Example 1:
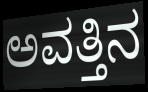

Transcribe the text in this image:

ಅವತ್ತಿನ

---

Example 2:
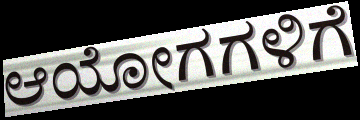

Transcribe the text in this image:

ಆಯೋಗಗಳಿಗೆ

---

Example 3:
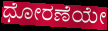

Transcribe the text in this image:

ಧೋರಣೆಯೇ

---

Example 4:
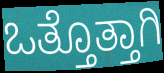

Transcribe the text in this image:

ಒತ್ತೊತ್ತಾಗಿ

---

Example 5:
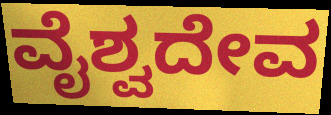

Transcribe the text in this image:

ವೈಶ್ವದೇವ